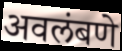
अवलंबणे